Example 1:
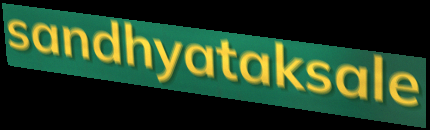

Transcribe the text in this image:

sandhyataksale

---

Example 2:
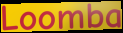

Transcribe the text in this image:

Loomba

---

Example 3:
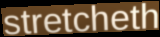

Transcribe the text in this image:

stretcheth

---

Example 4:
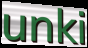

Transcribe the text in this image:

unki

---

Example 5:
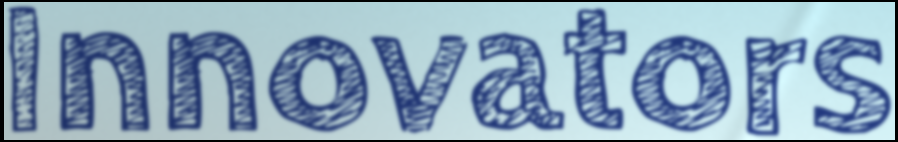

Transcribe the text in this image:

Innovators